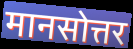
मानसोत्तर